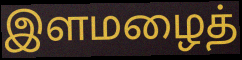
இளமழைத்